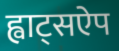
ह्वाट्सऐप